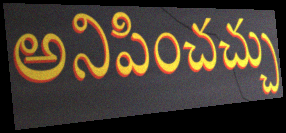
అనిపించచ్చు